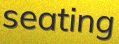
seating